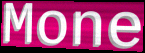
Mone